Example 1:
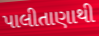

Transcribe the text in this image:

પાલીતાણાથી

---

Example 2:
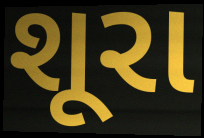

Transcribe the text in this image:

શૂરા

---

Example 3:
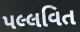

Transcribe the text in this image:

પલ્લવિત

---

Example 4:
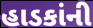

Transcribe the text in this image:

હાડકાંની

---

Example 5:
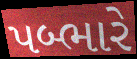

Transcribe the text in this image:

પબ્ભારે